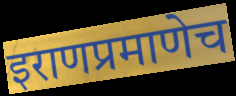
इराणप्रमाणेच